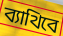
ব্যাথিবে